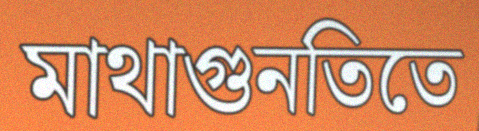
মাথাগুনতিতে